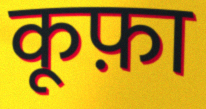
कूफ़ा